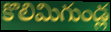
కొలిమిగుండ్ల